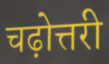
चढ़ोत्तरी